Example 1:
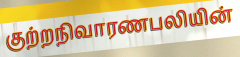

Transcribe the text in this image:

குற்றநிவாரணபலியின்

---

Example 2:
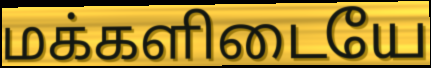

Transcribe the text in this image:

மக்களிடையே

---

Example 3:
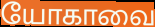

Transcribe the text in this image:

யோகாவை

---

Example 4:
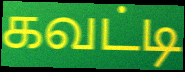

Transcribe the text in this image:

கவட்டி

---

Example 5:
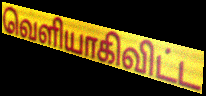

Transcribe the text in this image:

வெளியாகிவிட்ட